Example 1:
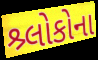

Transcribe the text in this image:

શ્ર્લોકોના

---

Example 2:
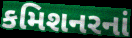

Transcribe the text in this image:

કમિશનરનાં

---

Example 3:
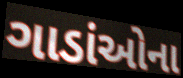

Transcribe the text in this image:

ગાડાંઓના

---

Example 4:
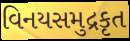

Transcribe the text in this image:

વિનયસમુદ્રકૃત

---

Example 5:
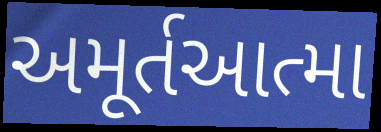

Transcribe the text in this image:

અમૂર્તઆત્મા